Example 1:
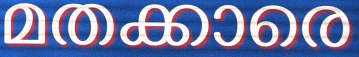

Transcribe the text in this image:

മതക്കാരെ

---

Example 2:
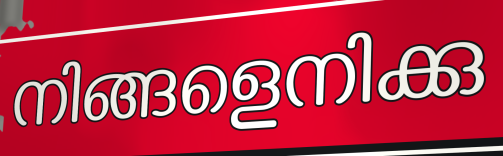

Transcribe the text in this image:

നിങ്ങളെനിക്കു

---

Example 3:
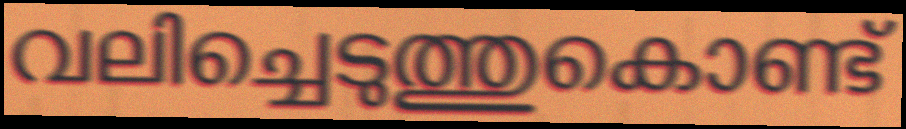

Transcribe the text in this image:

വലിച്ചെടുത്തുകൊണ്ട്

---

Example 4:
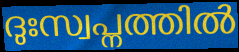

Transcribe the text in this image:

ദുഃസ്വപ്നത്തിൽ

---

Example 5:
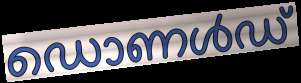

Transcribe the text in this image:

ഡൊണൾഡ്